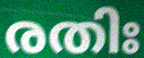
രതിഃ